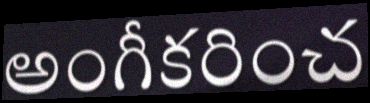
అంగీకరించ